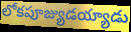
లోకపూజ్యుడయ్యాడు